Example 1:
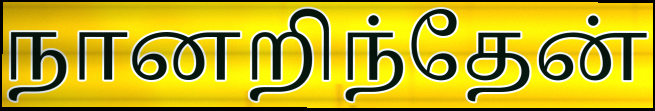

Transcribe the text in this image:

நானறிந்தேன்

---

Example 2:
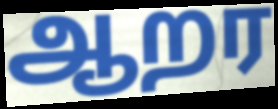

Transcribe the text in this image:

ஆறர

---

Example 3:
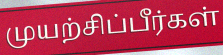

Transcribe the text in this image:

முயற்சிப்பீர்கள்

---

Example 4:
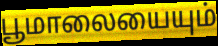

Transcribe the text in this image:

பூமாலையையும்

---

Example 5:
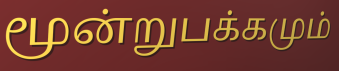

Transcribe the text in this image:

மூன்றுபக்கமும்